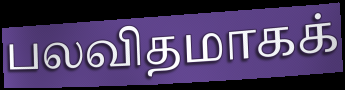
பலவிதமாகக்